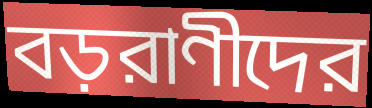
বড়রাণীদের